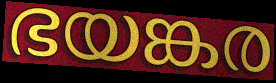
ഭയങ്കര